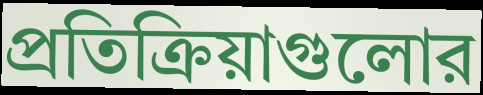
প্রতিক্রিয়াগুলোর